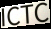
ICTC